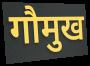
गौमुख